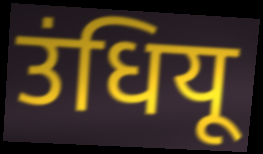
उंधियू